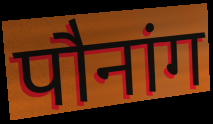
पौनांग